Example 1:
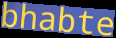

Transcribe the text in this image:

bhabte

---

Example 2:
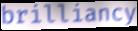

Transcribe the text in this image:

brilliancy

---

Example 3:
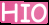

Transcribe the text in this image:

HIO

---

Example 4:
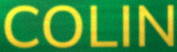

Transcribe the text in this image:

COLIN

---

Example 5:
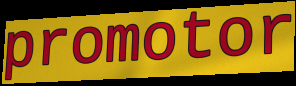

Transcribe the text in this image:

promotor